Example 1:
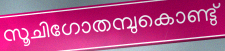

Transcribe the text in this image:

സൂചിഗോതമ്പുകൊണ്ടു്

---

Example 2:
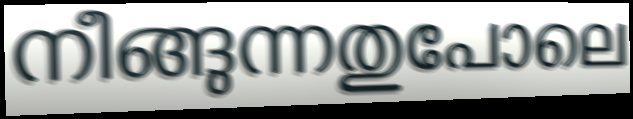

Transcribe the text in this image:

നീങ്ങുന്നതുപോലെ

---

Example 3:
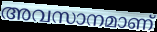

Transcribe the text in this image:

അവസാനമാണ്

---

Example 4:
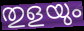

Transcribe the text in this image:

തുളയും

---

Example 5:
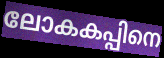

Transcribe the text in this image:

ലോകകപ്പിനെ